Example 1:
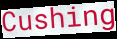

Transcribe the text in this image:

Cushing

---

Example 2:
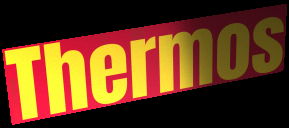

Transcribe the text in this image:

Thermos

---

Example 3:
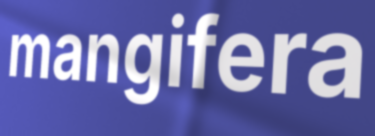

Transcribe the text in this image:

mangifera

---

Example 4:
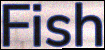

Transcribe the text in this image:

Fish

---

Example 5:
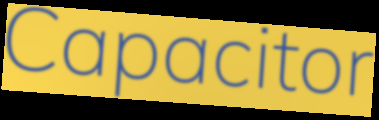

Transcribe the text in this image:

Capacitor